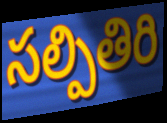
సల్పితిరి